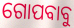
ଗୋପବାବୁ